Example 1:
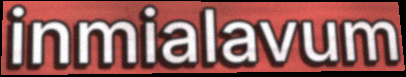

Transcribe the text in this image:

inmialavum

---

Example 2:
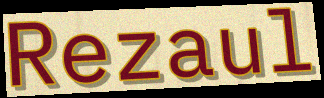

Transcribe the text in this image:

Rezaul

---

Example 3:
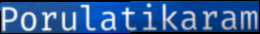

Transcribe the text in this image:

Porulatikaram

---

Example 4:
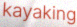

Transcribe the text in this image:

kayaking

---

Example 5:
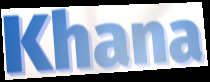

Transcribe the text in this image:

Khana